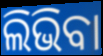
ଲିଭିବା